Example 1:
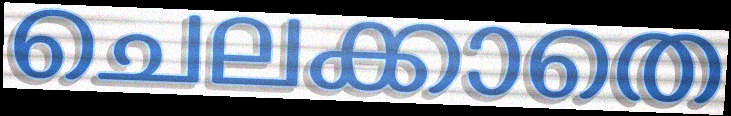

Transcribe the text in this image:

ചെലക്കാതെ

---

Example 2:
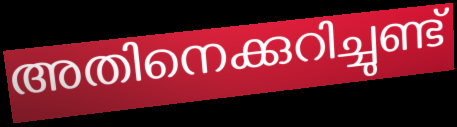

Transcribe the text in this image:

അതിനെക്കുറിച്ചുണ്ട്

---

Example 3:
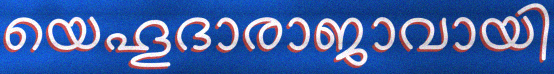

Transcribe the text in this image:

യെഹൂദാരാജാവായി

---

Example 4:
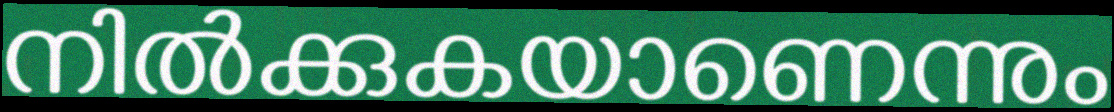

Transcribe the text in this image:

നിൽക്കുകയാണെന്നും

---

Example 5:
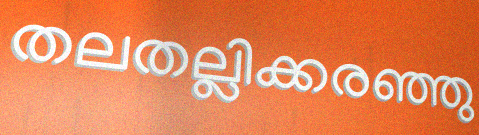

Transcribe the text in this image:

തലതല്ലിക്കരഞ്ഞു